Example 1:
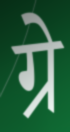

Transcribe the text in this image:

ग्रे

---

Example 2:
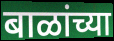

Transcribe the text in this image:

बाळांच्या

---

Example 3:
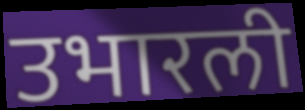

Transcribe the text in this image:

उभारली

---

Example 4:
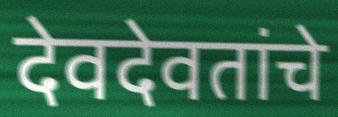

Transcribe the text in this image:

देवदेवतांचे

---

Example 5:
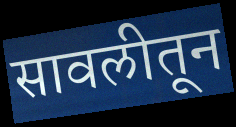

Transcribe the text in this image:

सावलीतून